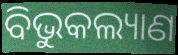
ବିଭୁକଲ୍ୟାଣ